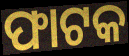
ଫାଟକ